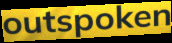
outspoken